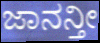
ಜಾನನ್ತೀ